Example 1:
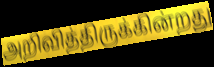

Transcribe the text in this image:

அறிவித்திருக்கின்றது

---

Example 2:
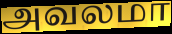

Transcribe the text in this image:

அவலமா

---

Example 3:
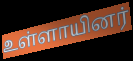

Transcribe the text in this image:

உள்ளாயினர்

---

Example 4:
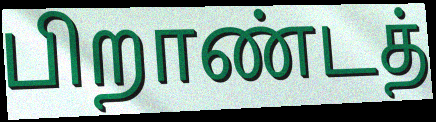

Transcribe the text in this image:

பிறாண்டத்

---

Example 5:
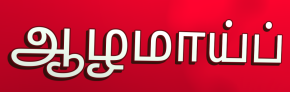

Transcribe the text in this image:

ஆழமாய்ப்